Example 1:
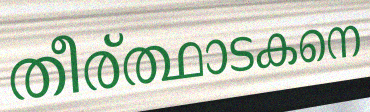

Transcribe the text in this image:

തീര്ത്ഥാടകനെ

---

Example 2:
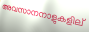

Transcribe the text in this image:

അവസാനനാളുകളില്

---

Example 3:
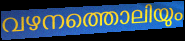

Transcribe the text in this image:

വഴനത്തൊലിയും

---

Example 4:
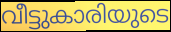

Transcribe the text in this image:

വീട്ടുകാരിയുടെ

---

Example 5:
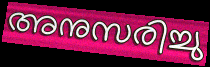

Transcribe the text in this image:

അനുസരിച്ചു